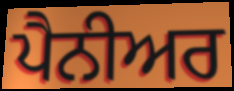
ਪੈਨੀਅਰ